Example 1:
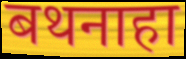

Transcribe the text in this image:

बथनाहा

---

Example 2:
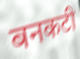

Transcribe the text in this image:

बनकटी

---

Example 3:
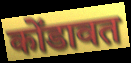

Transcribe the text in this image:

कोंडावत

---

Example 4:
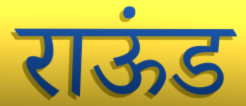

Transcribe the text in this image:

राऊंड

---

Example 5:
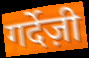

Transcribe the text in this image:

गर्देज़ी